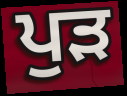
ਪੁੜ